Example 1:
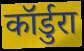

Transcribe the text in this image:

कॉर्डुरा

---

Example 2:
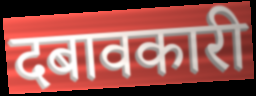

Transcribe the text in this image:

दबावकारी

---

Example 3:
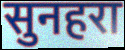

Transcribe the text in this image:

सुनहरा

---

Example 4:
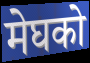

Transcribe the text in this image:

मेघको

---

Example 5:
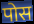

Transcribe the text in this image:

पोस